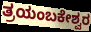
ತ್ರಯಂಬಕೇಶ್ವರ